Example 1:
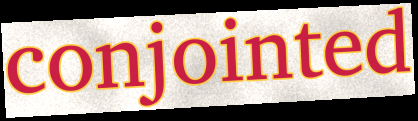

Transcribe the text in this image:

conjointed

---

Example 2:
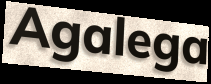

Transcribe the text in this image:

Agalega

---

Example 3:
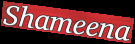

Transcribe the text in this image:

Shameena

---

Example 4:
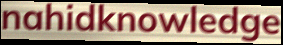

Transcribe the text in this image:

nahidknowledge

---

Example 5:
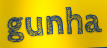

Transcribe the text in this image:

gunha